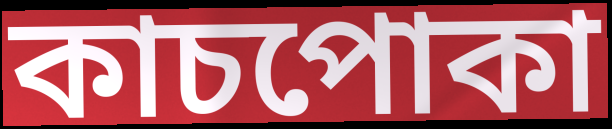
কাচপোকা